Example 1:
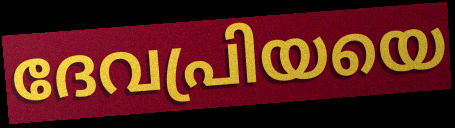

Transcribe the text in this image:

ദേവപ്രിയയെ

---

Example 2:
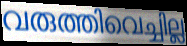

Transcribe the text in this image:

വരുത്തിവെച്ചില്ല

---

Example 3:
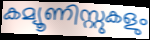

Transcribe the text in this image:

കമ്യൂണിസ്റ്റുകളും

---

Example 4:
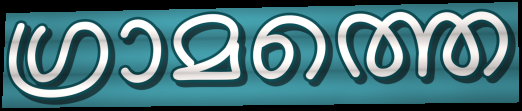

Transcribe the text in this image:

ഗ്രാമത്തെ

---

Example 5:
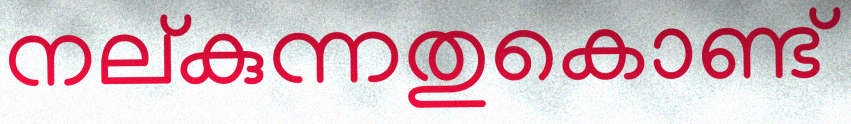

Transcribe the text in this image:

നല്കുന്നതുകൊണ്ട്